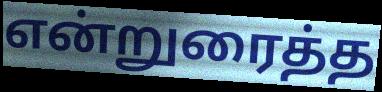
என்றுரைத்த